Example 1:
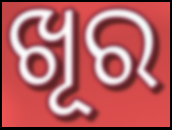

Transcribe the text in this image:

ଖୂର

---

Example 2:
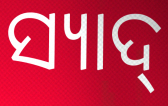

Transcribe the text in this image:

ସ୍ୟାଦ୍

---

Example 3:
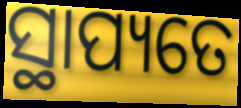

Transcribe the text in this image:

ସ୍ଥାପ୍ୟତେ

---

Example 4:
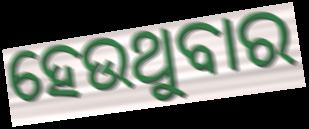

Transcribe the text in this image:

ହେଉଥୁବାର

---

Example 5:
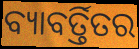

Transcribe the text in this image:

ବ୍ୟାବର୍ତ୍ତିତର